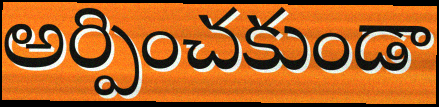
అర్పించకుండా